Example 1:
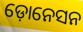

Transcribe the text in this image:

ଡ଼ୋନେସନ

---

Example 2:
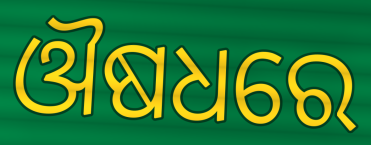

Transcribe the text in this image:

ଔଷଧରେ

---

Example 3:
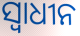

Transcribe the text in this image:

ସ୍ୱାଧୀନ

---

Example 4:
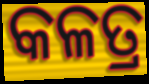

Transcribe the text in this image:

କଳତ୍ର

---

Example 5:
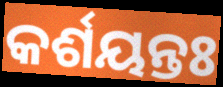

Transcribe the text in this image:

କର୍ଶୟନ୍ତଃ